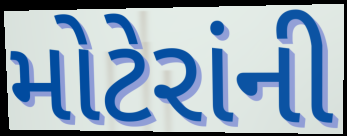
મોટેરાંની